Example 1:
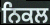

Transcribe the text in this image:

ਨਿਕਲ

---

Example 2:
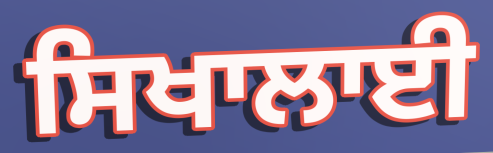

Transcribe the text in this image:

ਸਿਖਾਲਾਈ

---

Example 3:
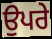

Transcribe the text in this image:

ਉਪਰੇ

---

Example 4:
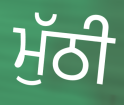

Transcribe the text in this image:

ਮੁੱਠੀ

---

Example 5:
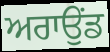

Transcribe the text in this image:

ਅਰਾਉਂਡ